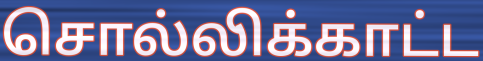
சொல்லிக்காட்ட